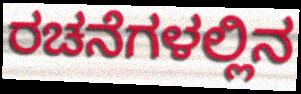
ರಚನೆಗಳಲ್ಲಿನ